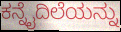
ಕನ್ನೈದಿಲೆಯನ್ನು